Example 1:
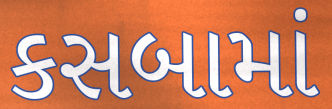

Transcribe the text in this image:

કસબામાં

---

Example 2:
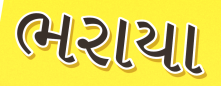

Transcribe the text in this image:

ભરાયા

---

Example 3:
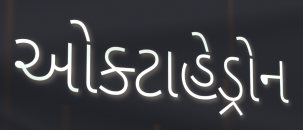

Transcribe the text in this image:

ઓક્ટાહેડ્રોન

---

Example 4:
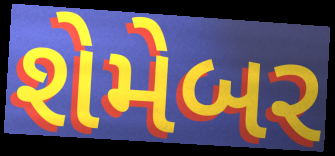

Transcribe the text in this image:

શેમેબર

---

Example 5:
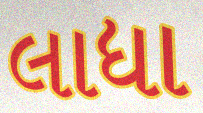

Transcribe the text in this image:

લાદ્યા